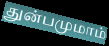
துன்பமுமாம்